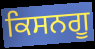
ਕਿਸਨਗੂ